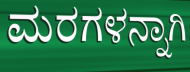
ಮರಗಳನ್ನಾಗಿ